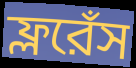
ফ্লরেঁস